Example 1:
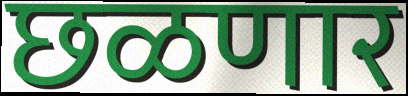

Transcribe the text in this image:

छळणार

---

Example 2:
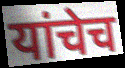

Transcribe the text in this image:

यांचेच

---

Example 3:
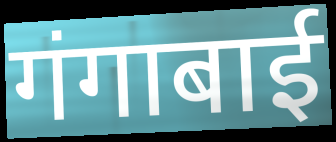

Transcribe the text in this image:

गंगाबाई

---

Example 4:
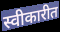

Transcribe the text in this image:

स्वीकारीत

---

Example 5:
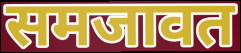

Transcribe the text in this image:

समजावत